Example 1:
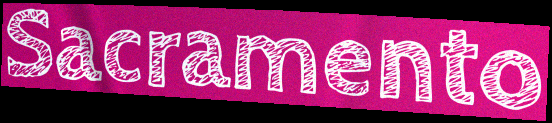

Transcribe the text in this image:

Sacramento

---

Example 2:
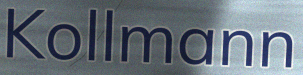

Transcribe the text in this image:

Kollmann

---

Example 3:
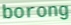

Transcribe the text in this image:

borong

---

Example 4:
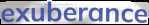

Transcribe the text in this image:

exuberance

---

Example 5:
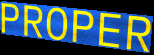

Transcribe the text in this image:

PROPER